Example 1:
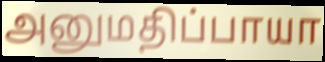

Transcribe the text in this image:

அனுமதிப்பாயா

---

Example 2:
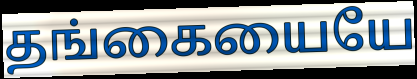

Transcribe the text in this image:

தங்கையையே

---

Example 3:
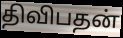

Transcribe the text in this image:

திவிபதன்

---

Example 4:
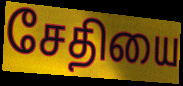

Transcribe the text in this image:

சேதியை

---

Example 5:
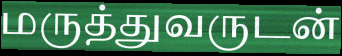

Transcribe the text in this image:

மருத்துவருடன்